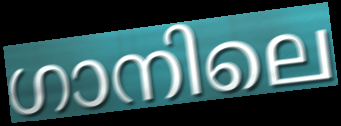
ഗാനിലെ